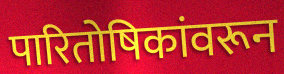
पारितोषिकांवरून